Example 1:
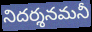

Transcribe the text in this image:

నిదర్శనమనీ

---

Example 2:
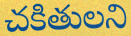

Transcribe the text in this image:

చకితులని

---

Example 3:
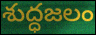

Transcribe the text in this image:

శుద్ధజలం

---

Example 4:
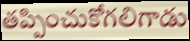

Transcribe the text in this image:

తప్పించుకోగలిగాడు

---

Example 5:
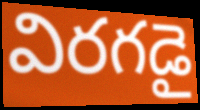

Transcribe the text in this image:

విరగడై